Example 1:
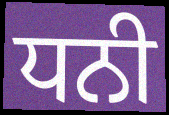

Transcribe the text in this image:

ਧਨੀ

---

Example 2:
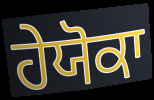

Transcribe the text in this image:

ਹੇਯੋਕਾ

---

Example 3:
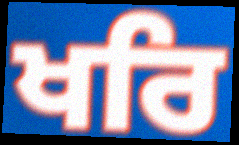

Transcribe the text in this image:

ਖਰਿ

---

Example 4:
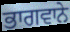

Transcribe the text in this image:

ਭਾਗਵਾਨੇ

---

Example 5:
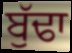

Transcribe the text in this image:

ਬੁੱਢਾ